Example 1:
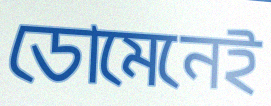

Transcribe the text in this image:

ডোমেনেই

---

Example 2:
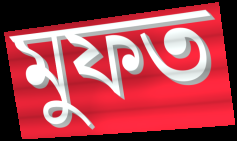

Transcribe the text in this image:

মুফত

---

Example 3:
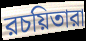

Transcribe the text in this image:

রচয়িতারা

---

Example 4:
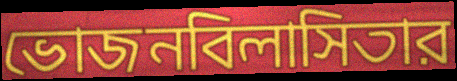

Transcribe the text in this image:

ভোজনবিলাসিতার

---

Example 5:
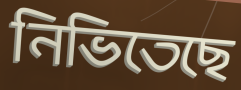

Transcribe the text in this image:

নিভিতেছে